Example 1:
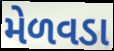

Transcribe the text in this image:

મેળવડા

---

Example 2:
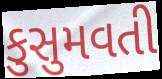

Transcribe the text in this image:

કુસુમવતી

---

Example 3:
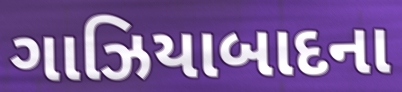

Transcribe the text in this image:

ગાઝિયાબાદના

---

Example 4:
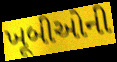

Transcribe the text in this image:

ખૂબીઓની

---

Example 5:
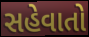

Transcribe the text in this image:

સહેવાતો